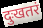
दुःखतरं